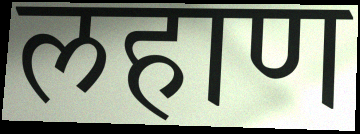
लहाण